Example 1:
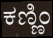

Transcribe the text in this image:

ಕಣ್ಣಿಂ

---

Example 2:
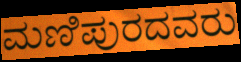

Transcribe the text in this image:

ಮಣಿಪುರದವರು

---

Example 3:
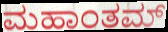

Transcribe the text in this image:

ಮಹಾಂತಮ್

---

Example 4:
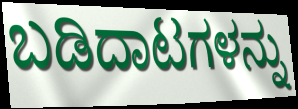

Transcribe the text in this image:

ಬಡಿದಾಟಗಳನ್ನು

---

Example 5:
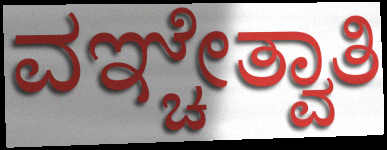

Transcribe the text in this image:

ವಞ್ಚೇತ್ವಾತಿ